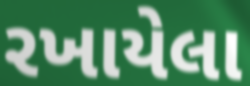
રખાયેલા